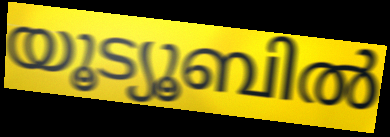
യൂട്യൂബിൽ